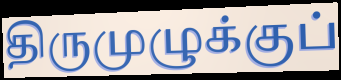
திருமுழுக்குப்